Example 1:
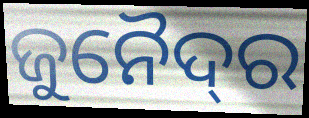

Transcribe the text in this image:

ଜୁନୈଦ୍‌ର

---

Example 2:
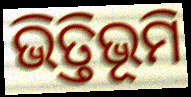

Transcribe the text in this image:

ଭିତ୍ତିଭୂମି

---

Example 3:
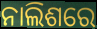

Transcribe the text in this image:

ନାଲିଶରେ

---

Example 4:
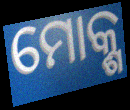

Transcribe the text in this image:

ମୋକ୍ଶ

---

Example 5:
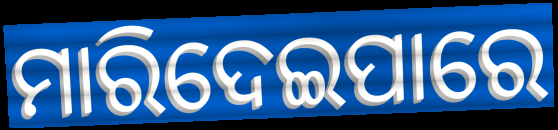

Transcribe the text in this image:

ମାରିଦେଇପାରେ